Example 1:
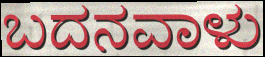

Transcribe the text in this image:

ಬದನವಾಳು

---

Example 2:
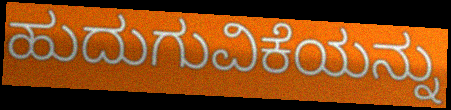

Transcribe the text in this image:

ಹುದುಗುವಿಕೆಯನ್ನು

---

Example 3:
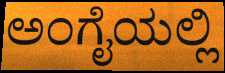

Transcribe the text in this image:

ಅಂಗೈಯಲ್ಲಿ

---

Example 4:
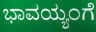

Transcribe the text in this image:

ಭಾವಯ್ಯಂಗೆ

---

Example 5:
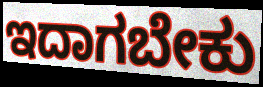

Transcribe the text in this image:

ಇದಾಗಬೇಕು